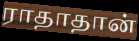
ராதாதான்